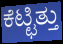
ಕೆಟ್ಟಿತ್ತು